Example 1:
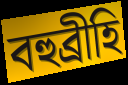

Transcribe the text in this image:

বহুব্ৰীহি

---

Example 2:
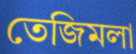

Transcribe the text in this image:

তেজিমলা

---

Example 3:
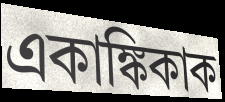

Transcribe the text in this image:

একাঙ্কিকাক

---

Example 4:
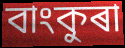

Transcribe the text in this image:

বাংকুৰা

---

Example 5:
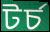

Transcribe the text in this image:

টৰ্চ